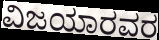
ವಿಜಯಾರವರ